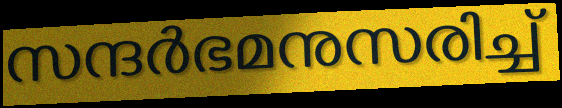
സന്ദർഭമനുസരിച്ച്